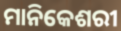
ମାନିକେଶରୀ